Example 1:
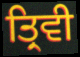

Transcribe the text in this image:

ਤ੍ਰਿਵੀ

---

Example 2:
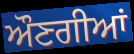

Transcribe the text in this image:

ਔਣਗੀਆਂ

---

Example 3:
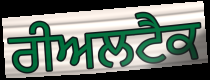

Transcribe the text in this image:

ਰੀਅਲਟੈਕ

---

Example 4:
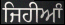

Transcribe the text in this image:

ਜਿਹੀਆੰ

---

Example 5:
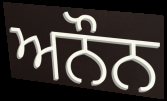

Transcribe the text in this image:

ਅਨੌਨ